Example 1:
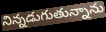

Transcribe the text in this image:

నిన్నడుగుతున్నాను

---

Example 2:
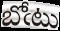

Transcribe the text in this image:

బోఁటు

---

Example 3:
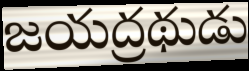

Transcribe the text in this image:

జయద్రథుడు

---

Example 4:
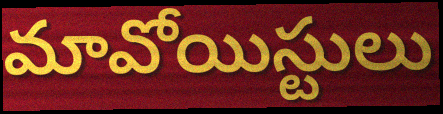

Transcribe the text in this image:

మావోయిస్టులు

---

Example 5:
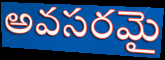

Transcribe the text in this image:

అవసరమై